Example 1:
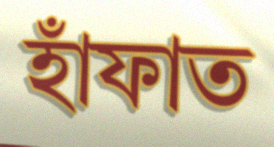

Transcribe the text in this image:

হাঁফাত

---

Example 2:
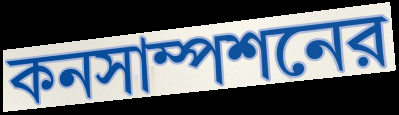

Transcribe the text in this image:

কনসাম্পশনের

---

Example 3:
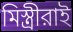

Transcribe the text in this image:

মিস্ত্রীরাই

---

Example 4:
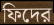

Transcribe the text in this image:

ফিদের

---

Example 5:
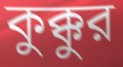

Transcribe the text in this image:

কুক্কুর